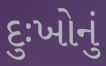
દુઃખોનું